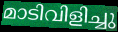
മാടിവിളിച്ചു